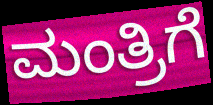
ಮಂತ್ರಿಗೆ